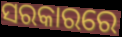
ସରକାରରେ